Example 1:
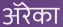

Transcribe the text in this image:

ॲरेका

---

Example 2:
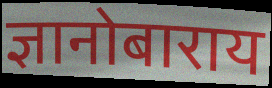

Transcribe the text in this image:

ज्ञानोबाराय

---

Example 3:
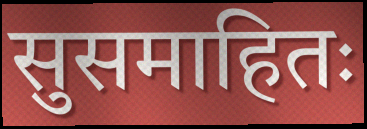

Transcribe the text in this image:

सुसमाहितः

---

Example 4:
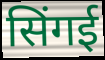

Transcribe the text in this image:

सिंगई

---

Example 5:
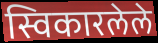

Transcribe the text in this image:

स्विकारलेले